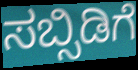
ಸಬ್ಸಿಡಿಗೆ